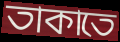
তাকাতে